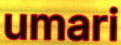
umari